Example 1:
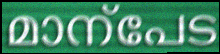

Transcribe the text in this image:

മാന്പേട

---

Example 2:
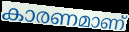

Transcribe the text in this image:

കാരണമാണ്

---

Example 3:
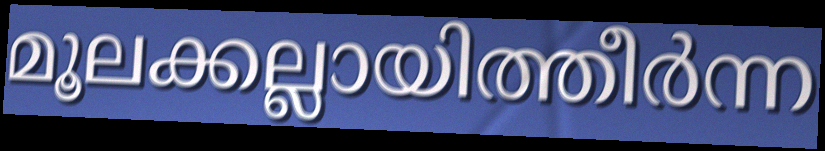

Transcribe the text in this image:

മൂലക്കല്ലായിത്തീർന്ന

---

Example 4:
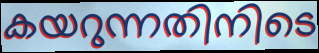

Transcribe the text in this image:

കയറുന്നതിനിടെ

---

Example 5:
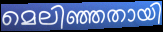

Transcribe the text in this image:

മെലിഞ്ഞതായി